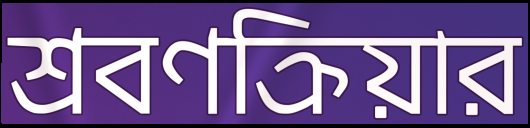
শ্রবণক্রিয়ার